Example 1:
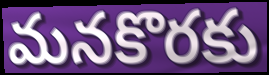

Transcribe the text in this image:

మనకొరకు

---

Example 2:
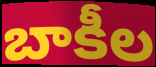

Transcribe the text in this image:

బాకీల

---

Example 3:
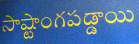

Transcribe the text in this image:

సాష్టాంగపడ్డాయి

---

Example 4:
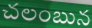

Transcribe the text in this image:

చలంబున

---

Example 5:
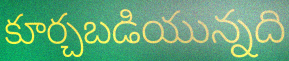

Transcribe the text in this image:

కూర్చబడియున్నది